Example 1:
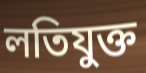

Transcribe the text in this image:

লতিযুক্ত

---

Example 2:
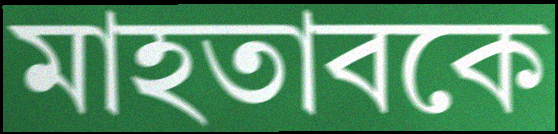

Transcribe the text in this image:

মাহতাবকে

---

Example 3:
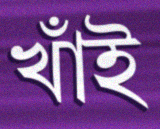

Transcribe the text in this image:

খাঁই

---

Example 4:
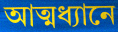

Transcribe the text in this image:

আত্মধ্যানে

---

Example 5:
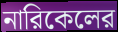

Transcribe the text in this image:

নারিকেলের